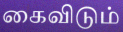
கைவிடும்